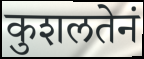
कुशलतेनं